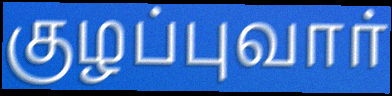
குழப்புவார்